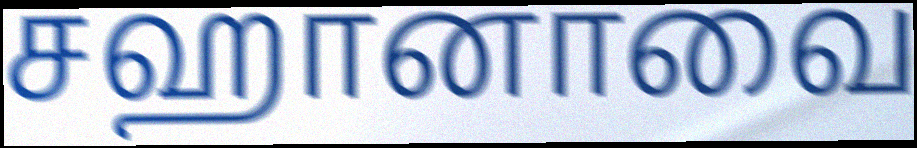
சஹானாவை